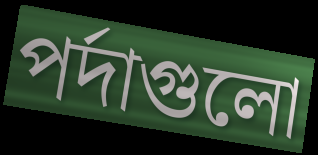
পর্দাগুলো